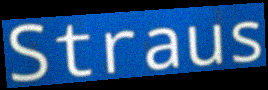
Straus